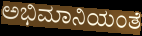
ಅಭಿಮಾನಿಯಂತೆ